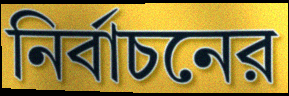
নির্বাচনের